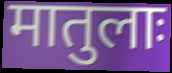
मातुलाः